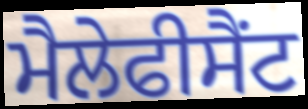
ਮੈਲੇਫੀਸੈਂਟ